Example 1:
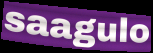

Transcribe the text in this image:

saagulo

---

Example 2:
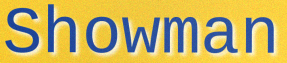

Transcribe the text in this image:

Showman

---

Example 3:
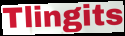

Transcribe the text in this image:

Tlingits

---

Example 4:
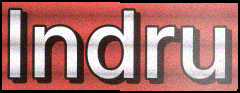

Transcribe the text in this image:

Indru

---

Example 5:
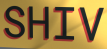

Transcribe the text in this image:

SHIV